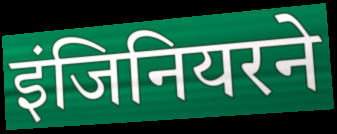
इंजिनियरने